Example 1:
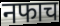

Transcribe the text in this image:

नफाच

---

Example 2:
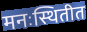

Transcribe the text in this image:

मनःस्थितीत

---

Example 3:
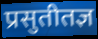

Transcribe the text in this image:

प्रसुतीतज्ञ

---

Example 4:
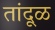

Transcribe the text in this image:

तांदूळ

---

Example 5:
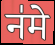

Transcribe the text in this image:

न॑मे